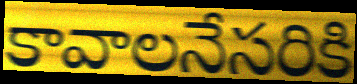
కావాలనేసరికి